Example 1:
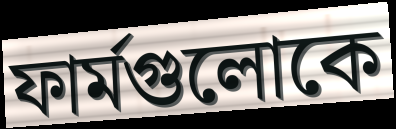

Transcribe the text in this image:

ফার্মগুলোকে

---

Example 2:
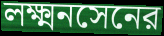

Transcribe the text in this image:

লক্ষ্মনসেনের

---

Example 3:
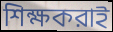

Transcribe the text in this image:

শিক্ষকরাই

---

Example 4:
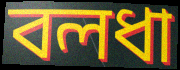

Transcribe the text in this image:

বলধা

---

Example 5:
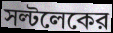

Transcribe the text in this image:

সল্টলেকের